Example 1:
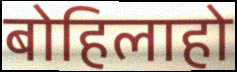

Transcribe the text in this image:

बोहिलाहो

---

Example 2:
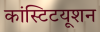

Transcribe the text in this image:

कांस्टिटयूशन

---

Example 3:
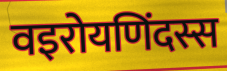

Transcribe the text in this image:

वइरोयणिंदस्स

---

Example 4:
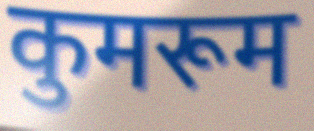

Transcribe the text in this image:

कुमरूम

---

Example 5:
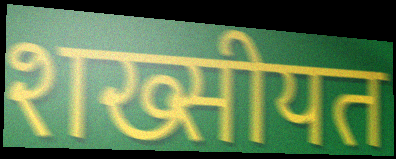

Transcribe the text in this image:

शख्सीयत